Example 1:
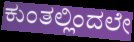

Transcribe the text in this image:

ಕುಂತಲ್ಲಿಂದಲೇ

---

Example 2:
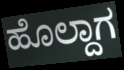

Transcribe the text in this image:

ಹೊಲ್ದಾಗ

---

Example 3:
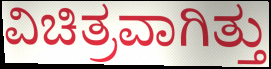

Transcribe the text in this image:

ವಿಚಿತ್ರವಾಗಿತ್ತು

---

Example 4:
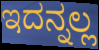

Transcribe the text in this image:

ಇದನ್ನಲ್ಲ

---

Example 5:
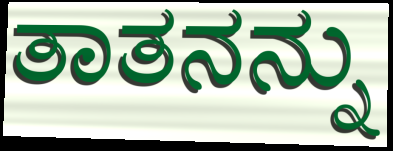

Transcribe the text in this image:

ತಾತನನ್ನು